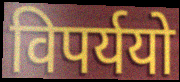
विपर्ययो